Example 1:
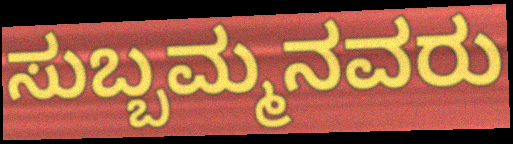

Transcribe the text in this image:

ಸುಬ್ಬಮ್ಮನವರು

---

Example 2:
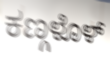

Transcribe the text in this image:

ಕಣ್ಗಳೊಳ್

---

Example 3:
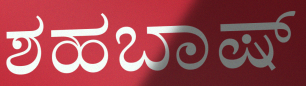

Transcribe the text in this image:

ಶಹಬಾಷ್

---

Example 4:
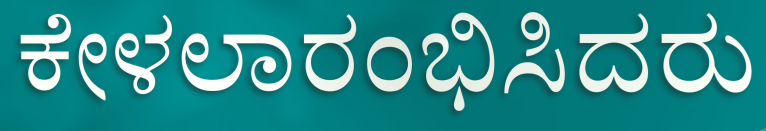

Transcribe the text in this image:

ಕೇಳಲಾರಂಭಿಸಿದರು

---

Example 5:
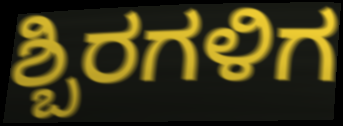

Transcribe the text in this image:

ಶ್ಬಿರಗಳಿಗ